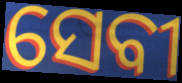
ସେବୀ